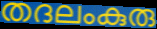
തദലംകുരു